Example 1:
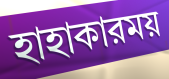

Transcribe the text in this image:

হাহাকারময়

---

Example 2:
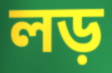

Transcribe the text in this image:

লড়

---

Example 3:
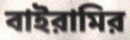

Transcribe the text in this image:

বাইরামির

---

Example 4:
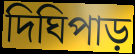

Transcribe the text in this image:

দিঘিপাড়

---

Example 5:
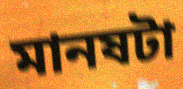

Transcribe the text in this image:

মানষটা